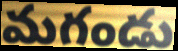
మగండు